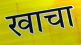
खाचा